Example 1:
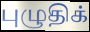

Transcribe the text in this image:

புழுதிக்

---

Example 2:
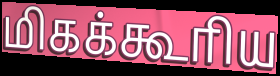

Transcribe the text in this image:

மிகக்கூரிய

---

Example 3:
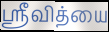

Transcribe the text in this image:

ஸ்ரீவித்யை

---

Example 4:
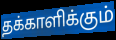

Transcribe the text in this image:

தக்காளிக்கும்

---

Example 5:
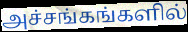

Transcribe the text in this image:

அச்சங்கங்களில்